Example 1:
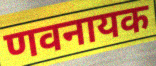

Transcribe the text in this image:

णवनायक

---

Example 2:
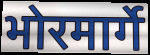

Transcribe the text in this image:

भोरमार्गे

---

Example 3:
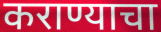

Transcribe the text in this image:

कराण्याचा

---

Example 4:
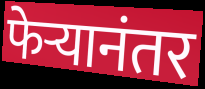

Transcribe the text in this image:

फेऱ्यानंतर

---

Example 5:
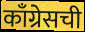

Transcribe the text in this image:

काँग्रेसची